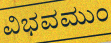
ವಿಭವಮುಂ